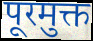
पूरमुक्त